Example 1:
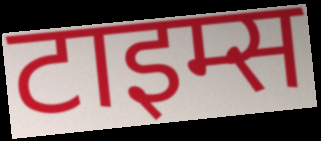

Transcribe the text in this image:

टाइम्स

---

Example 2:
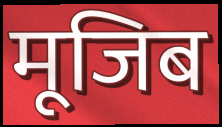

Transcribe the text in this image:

मूजिब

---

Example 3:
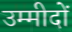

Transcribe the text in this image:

उम्मीदों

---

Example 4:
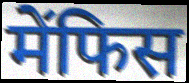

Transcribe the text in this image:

मेंफिस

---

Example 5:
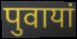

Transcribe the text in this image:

पुवायां